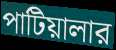
পাটিয়ালার